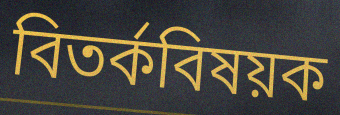
বিতর্কবিষয়ক